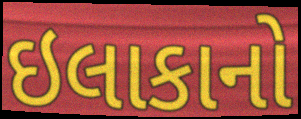
ઇલાકાનો